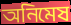
অনিমেষ